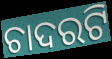
ଚାଦରଟି